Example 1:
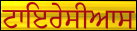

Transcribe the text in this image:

ਟਾਇਰੇਸੀਆਸ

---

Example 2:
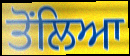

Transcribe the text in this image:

ਤੋਂਲਿਆ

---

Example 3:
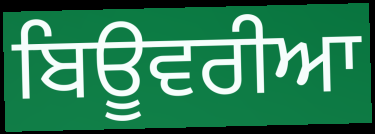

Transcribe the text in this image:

ਬਿਊਵਰੀਆ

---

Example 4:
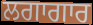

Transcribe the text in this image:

ਲਗਾਗਾਰ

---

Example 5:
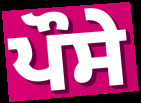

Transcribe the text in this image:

ਪੌਸੇ